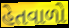
હેતવાળો